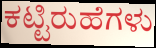
ಕಟ್ಟಿರುಹೆಗಳು